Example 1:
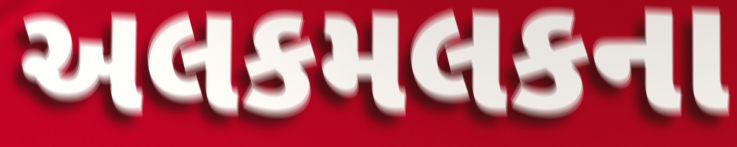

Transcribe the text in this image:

અલકમલકના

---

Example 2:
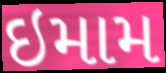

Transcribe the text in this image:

ઇમામ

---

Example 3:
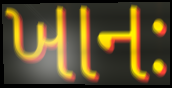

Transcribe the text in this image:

ખાનઃ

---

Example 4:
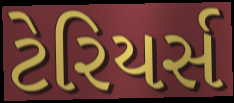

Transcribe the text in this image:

ટેરિયર્સ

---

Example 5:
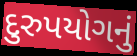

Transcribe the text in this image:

દુરુપયોગનું